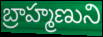
బ్రాహ్మణుని